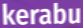
kerabu